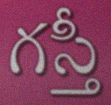
గస్తీ